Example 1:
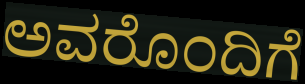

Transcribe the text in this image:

ಅವರೊಂದಿಗೆ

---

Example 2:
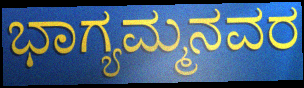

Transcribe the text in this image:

ಭಾಗ್ಯಮ್ಮನವರ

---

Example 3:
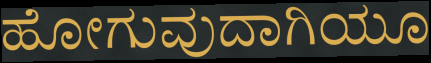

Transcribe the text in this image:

ಹೋಗುವುದಾಗಿಯೂ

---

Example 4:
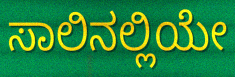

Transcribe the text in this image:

ಸಾಲಿನಲ್ಲಿಯೇ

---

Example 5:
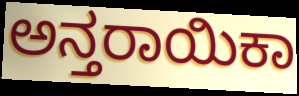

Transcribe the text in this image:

ಅನ್ತರಾಯಿಕಾ